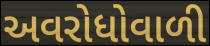
અવરોધોવાળી